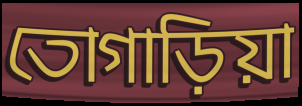
তোগাড়িয়া